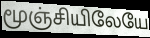
மூஞ்சியிலேயே